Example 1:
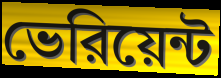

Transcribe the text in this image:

ভেরিয়েন্ট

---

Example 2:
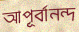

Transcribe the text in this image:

আপূর্বানন্দ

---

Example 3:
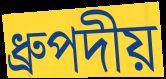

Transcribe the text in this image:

ধ্রুপদীয়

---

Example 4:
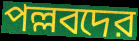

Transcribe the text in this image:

পল্লবদের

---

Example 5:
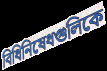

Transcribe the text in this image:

বিধিনিষেধগুলিকে